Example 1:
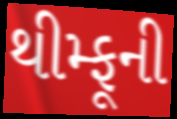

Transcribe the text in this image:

થીમ્ફૂની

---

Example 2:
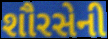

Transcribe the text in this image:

શૌરસેની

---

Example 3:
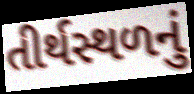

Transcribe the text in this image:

તીર્થસ્થળનું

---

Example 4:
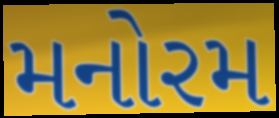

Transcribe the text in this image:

મનોરમ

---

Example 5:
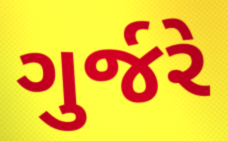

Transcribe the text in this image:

ગુર્જરે